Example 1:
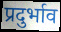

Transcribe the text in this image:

प्रदुर्भाव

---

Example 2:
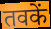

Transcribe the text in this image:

तवकें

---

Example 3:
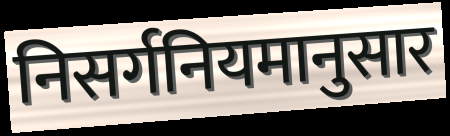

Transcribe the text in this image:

निसर्गनियमानुसार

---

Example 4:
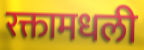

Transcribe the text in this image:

रक्तामधली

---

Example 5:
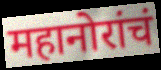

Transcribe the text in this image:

महानोरांचं